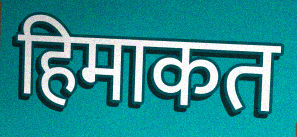
हिमाकत